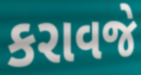
કરાવજે